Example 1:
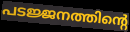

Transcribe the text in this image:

പടജ്ജനത്തിന്റെ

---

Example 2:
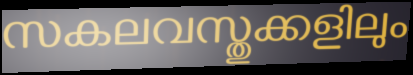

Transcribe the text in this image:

സകലവസ്തുക്കളിലും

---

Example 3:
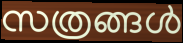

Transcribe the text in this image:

സത്രങ്ങൾ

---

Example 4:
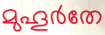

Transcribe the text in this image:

മുഹൂർതേ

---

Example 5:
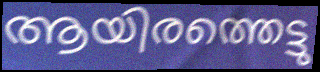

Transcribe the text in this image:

ആയിരത്തെട്ടു